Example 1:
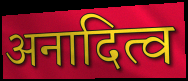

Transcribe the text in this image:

अनादित्व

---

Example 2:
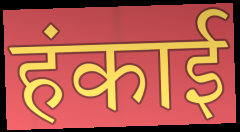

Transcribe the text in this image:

हंकाई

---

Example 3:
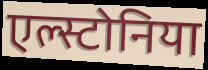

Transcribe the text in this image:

एल्स्टोनिया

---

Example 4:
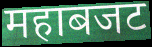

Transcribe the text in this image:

महाबजट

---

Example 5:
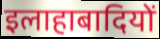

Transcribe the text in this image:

इलाहाबादियों